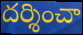
దర్శించా